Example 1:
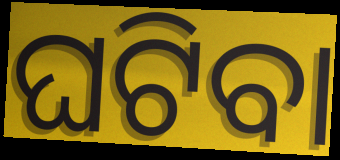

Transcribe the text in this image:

ଘଟିବା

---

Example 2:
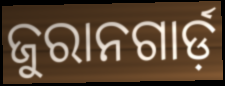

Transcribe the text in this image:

ଜୁରାନଗାର୍ଡ଼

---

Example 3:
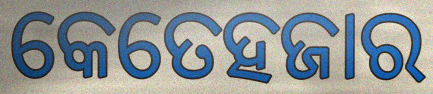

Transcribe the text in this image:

କେତେହଜାର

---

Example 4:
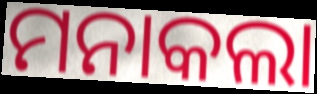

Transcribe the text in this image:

ମନାକଲା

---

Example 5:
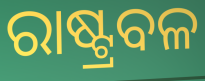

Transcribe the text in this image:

ରାଷ୍ଟ୍ରବଳ